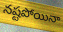
నష్టపోయినా